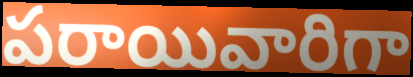
పరాయివారిగా